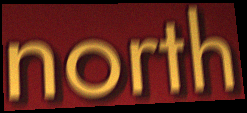
north